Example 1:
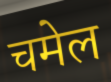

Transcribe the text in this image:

चमेल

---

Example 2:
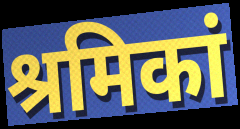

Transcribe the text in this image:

श्रमिकां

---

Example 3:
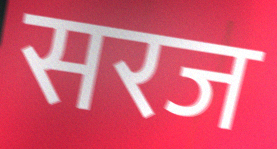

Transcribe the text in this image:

सरज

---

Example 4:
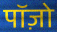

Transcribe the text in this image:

पॉज़ो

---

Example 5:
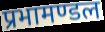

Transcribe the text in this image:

प्रभामण्डल